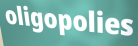
oligopolies